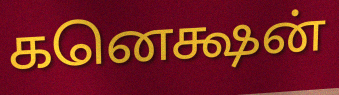
கனெக்ஷன்